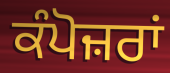
ਕੰਪੋਜ਼ਰਾਂ